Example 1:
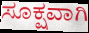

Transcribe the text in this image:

ಸೂಕ್ಷವಾಗಿ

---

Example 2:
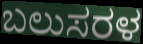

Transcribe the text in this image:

ಬಲುಸರಳ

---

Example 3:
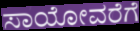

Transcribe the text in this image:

ಸಾಯೋವರೆಗೆ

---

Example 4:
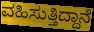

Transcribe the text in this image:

ವಹಿಸುತ್ತಿದ್ದಾನೆ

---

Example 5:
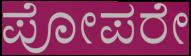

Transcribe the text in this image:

ಪೋಪರೇ